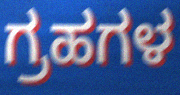
ಗ್ರಹಗಳ